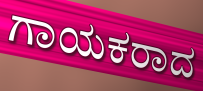
ಗಾಯಕರಾದ